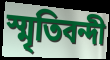
স্মৃতিবন্দী